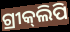
ଗ୍ରୀକ୍‌ଲିପି